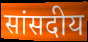
सांसदीय